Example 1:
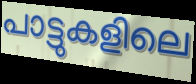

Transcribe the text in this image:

പാട്ടുകളിലെ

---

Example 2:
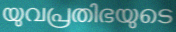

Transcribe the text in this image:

യുവപ്രതിഭയുടെ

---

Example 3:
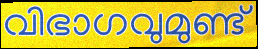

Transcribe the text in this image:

വിഭാഗവുമുണ്ട്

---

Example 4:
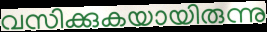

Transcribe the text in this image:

വസിക്കുകയായിരുന്നു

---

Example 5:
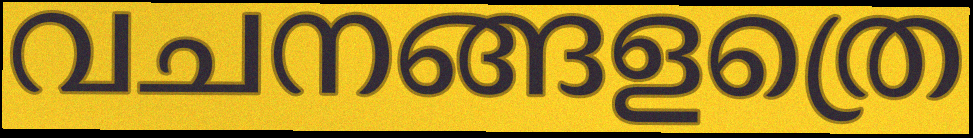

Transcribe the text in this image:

വചനങ്ങളത്രെ